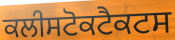
ਕਲੀਸਟੋਕਟੈਕਟਸ